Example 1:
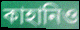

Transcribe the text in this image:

কাহানিও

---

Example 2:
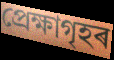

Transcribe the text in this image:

প্ৰেক্ষাগৃহৰ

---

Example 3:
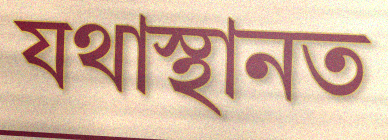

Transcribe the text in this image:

যথাস্থানত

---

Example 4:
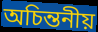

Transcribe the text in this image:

অচিন্তনীয়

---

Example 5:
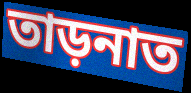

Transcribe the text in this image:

তাড়নাত